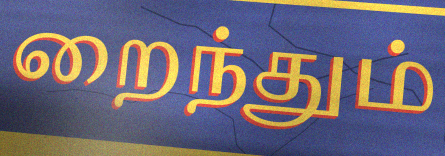
றைந்தும்